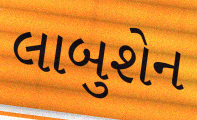
લાબુશેન